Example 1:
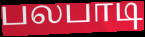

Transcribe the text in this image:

பலபாடி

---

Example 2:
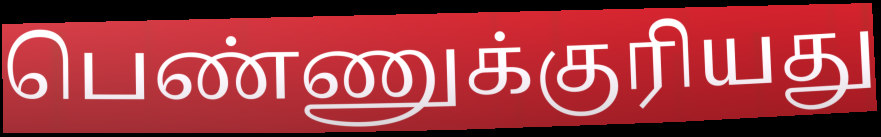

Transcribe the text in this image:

பெண்ணுக்குரியது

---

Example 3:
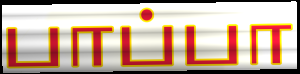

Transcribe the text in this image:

பாப்பா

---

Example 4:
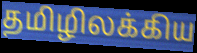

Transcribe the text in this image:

தமிழிலக்கிய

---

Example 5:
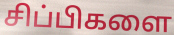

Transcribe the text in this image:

சிப்பிகளை